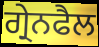
ਗ੍ਰੇਨਫੈਲ